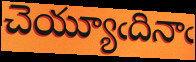
చెయ్యూఁదినాఁ